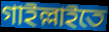
গাইল্লাইতে